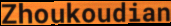
Zhoukoudian